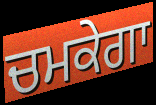
ਚਮਕੇਗਾ